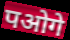
पओगे